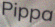
Pippa